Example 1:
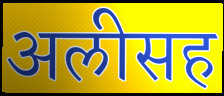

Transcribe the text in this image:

अलीसह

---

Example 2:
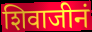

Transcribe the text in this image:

शिवाजीनं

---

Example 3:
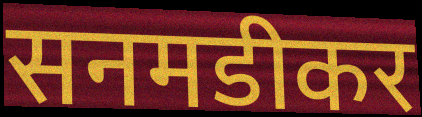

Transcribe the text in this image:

सनमडीकर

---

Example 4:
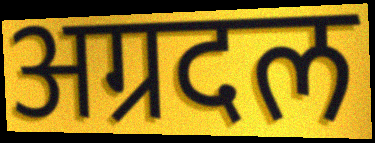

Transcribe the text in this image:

अग्रदल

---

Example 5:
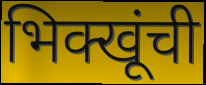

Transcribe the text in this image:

भिक्खूंची